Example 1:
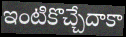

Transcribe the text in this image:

ఇంటికొచ్చేదాకా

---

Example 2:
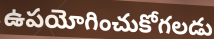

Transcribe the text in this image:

ఉపయోగించుకోగలడు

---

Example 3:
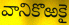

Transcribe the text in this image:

వానికొఱకై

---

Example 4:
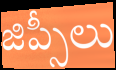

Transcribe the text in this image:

జిప్సీలు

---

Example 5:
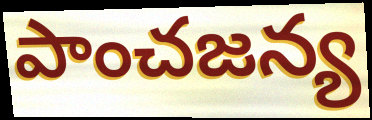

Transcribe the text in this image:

పాంచజన్య